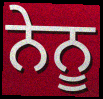
ਨੇਨੂ